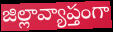
జిల్లావ్యాప్తంగా